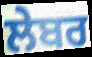
ਲੇਬਰ